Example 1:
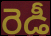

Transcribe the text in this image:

రెడీ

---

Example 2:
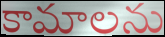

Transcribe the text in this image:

కామాలను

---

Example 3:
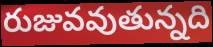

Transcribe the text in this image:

రుజువవుతున్నది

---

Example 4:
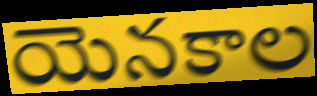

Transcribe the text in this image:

యెనకాల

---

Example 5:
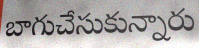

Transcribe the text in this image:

బాగుచేసుకున్నారు